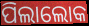
ପିଲାଲୋକ